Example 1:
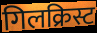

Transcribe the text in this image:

गिलक्रिस्ट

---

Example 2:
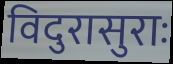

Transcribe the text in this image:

विदुरासुराः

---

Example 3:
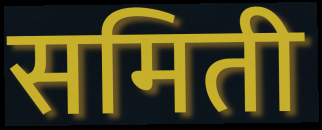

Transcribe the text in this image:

समिती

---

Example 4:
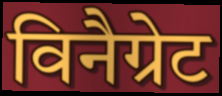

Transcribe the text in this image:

विनैग्रेट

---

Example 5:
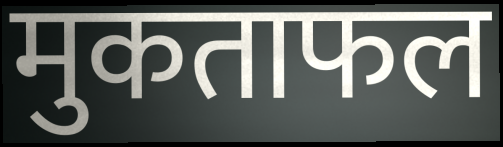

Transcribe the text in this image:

मुकताफल